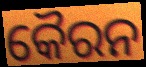
କୈରନ